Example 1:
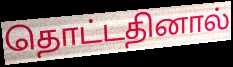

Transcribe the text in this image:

தொட்டதினால்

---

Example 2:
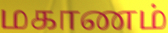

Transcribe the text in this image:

மகாணம்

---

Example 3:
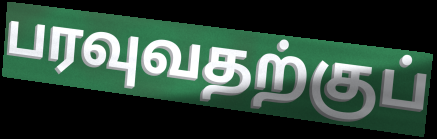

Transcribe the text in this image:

பரவுவதற்குப்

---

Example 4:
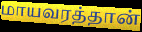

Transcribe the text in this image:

மாயவரத்தான்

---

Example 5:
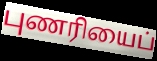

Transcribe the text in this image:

புணரியைப்